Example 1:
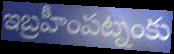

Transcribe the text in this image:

ఇబ్రహీంపట్నంకు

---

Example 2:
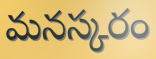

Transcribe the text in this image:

మనస్కరం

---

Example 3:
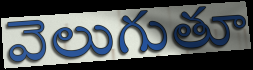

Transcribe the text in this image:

వెలుగుతూ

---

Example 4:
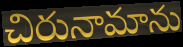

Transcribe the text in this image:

చిరునామాను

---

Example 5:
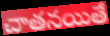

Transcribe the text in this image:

చాతనయితే